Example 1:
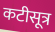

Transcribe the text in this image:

कटीसूत्र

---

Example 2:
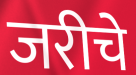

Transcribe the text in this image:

जरीचे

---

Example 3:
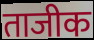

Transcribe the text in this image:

ताजीक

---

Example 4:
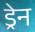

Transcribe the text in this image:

ड्रेन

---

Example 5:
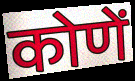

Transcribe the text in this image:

कोणें